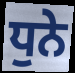
ਧੁਨੇ